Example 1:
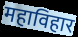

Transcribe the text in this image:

महाविहार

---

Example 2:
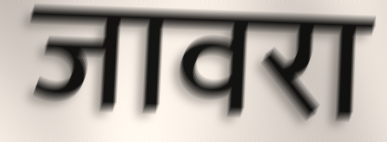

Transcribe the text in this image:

जावरा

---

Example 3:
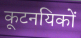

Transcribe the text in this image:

कूटनयिकों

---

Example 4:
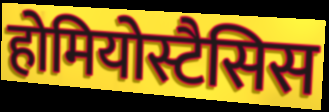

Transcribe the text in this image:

होमियोस्टैसिस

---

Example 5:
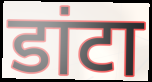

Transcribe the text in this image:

डांटा